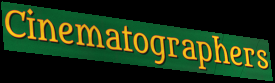
Cinematographers